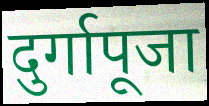
दुर्गापूजा